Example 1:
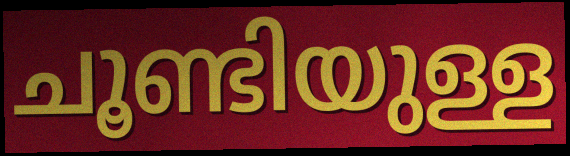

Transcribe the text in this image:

ചൂണ്ടിയുള്ള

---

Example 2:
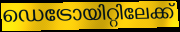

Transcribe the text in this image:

ഡെട്രോയിറ്റിലേക്ക്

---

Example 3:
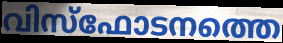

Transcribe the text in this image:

വിസ്ഫോടനത്തെ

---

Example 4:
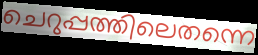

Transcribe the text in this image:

ചെറുപ്പത്തിലെതന്നെ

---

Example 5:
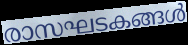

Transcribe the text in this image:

രാസഘടകങ്ങൾ